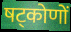
षट्कोणों